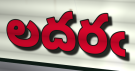
లదరఁ